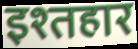
इश्तहार